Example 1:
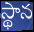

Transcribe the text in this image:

స్థాన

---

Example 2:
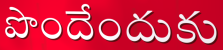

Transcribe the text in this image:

పొందేందుకు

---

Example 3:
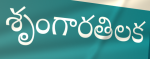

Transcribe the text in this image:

శృంగారతిలక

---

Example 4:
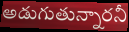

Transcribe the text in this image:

అడుగుతున్నారనీ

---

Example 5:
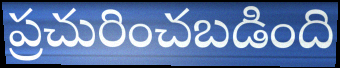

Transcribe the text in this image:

ప్రచురించబడింది